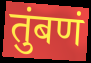
तुंबणं